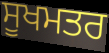
ਸੂਖਮਤਰ